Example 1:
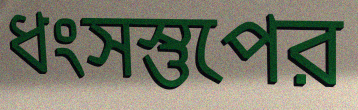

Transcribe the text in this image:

ধংসস্তুপের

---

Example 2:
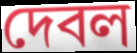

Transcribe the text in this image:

দেবল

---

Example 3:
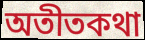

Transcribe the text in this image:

অতীতকথা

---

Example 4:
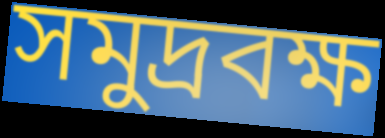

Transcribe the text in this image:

সমুদ্রবক্ষ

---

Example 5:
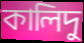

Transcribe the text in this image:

কালিদু